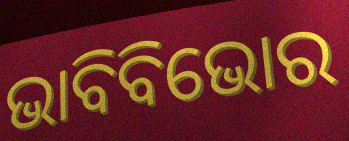
ଭାବିବିଭୋର